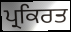
ਪ੍ਰਕਿਰਤ